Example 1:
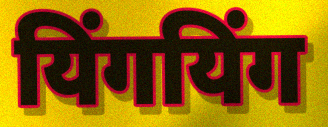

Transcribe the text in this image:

यिंगयिंग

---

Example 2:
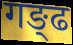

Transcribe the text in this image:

गङ्ढ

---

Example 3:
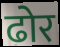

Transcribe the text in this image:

ढोर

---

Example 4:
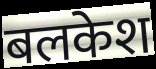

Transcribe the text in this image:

बलकेश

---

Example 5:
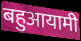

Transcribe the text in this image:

बहुआयामी